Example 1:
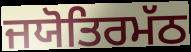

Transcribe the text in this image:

ਜਯੋਤਿਰਮੱਠ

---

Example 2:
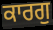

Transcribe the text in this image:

ਕਾਰਗੁ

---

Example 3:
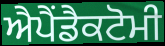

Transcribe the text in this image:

ਐਪੈਂਡੈਕਟੋਮੀ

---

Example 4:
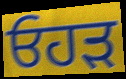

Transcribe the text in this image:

ਓਹੜ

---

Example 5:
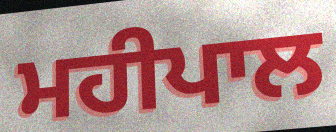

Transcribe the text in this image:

ਮਹੀਪਾਲ